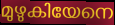
മുഴുകിയേനെ